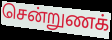
சென்றுணக்